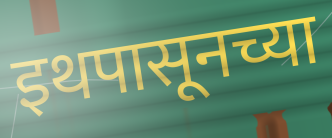
इथपासूनच्या